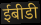
ईबीडी